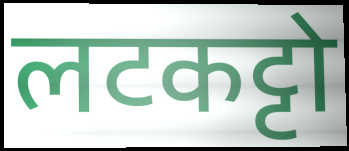
लटकट्टो